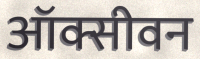
ऑक्सीवन